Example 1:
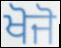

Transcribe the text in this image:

ਖੋਜੋ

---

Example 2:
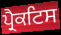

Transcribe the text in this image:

ਪ੍ਰੈਕਟਿਸ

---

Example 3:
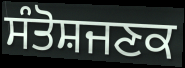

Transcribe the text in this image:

ਸੰਤੋਸ਼ਜਣਕ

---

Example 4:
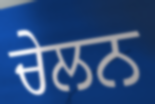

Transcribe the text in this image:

ਚੇਲਨ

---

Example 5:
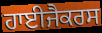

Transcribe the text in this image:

ਹਾਈਜੈਕਰਸ